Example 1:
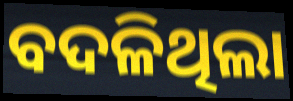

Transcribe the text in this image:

ବଦଳିଥିଲା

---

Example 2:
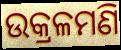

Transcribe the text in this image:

ଉକ୍ରଳମଣି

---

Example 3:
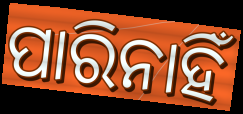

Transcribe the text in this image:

ପାରିନାହିଁ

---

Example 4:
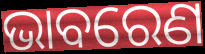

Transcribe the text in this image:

ଭାବରେଣ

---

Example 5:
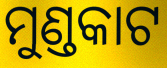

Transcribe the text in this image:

ମୁଣ୍ଡକାଟ